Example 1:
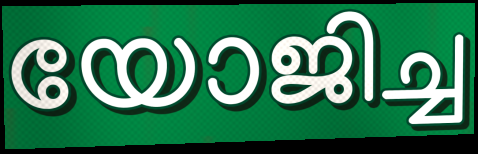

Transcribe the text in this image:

യോജിച്ച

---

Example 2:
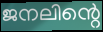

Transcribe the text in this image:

ജനലിന്റെ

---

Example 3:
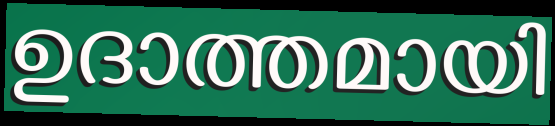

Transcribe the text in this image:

ഉദാത്തമായി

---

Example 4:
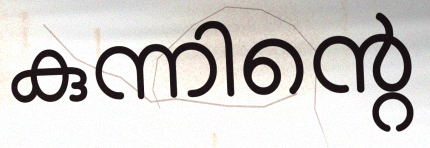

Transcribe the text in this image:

കുന്നിന്റെ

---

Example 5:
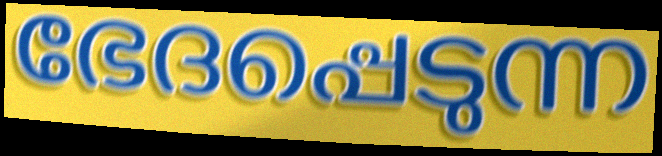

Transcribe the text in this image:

ഭേദപ്പെടുന്ന